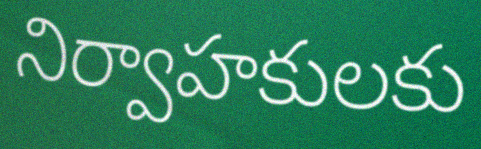
నిర్వాహకులకు